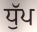
ਧੁੱਪ